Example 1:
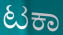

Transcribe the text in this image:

ಟಕಾ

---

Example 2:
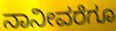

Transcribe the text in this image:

ನಾನೀವರೆಗೂ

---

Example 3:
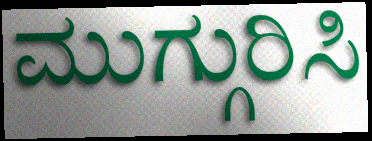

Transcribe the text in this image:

ಮುಗ್ಗುರಿಸಿ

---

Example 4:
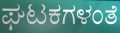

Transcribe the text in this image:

ಘಟಕಗಳಂತೆ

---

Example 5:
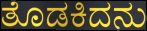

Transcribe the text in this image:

ತೊಡಕಿದನು